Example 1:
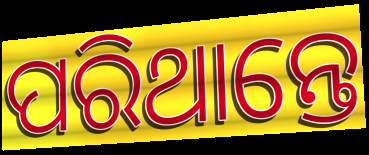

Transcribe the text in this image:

ପରିଥାନ୍ତେ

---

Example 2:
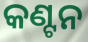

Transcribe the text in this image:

କଣ୍ଟନ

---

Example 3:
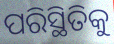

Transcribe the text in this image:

ପରିସ୍ଥିତିକୁ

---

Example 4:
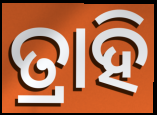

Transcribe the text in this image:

ତ୍ରାହି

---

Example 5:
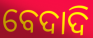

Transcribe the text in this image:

ବେଦାଦି